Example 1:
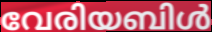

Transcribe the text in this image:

വേരിയബിൾ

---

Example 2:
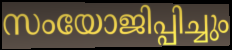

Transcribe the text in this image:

സംയോജിപ്പിച്ചും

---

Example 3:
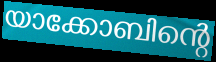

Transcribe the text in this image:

യാക്കോബിന്റെ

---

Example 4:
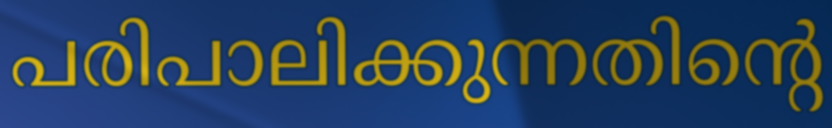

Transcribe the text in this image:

പരിപാലിക്കുന്നതിന്റെ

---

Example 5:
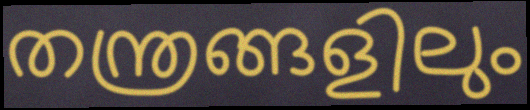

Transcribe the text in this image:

തന്ത്രങ്ങളിലും